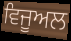
ਵਿਜੂਅਲ